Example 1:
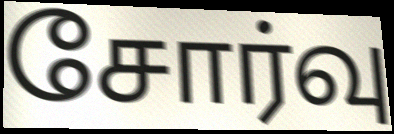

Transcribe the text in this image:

சோர்வு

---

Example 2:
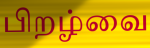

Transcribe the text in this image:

பிறழ்வை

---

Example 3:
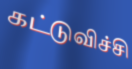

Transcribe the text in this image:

கட்டுவிச்சி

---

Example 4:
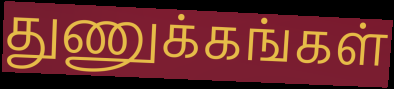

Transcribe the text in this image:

துணுக்கங்கள்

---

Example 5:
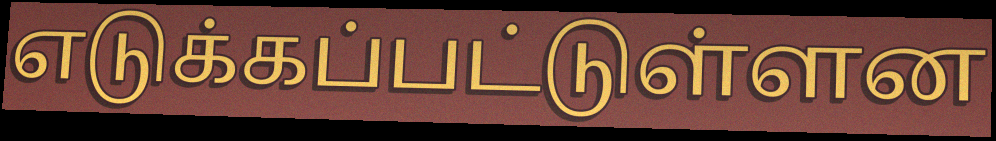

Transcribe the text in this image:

எடுக்கப்பட்டுள்ளன